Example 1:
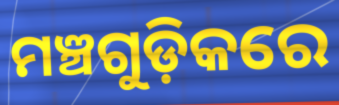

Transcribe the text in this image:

ମଞ୍ଚଗୁଡ଼ିକରେ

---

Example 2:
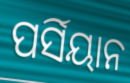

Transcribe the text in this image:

ପର୍ସିୟାନ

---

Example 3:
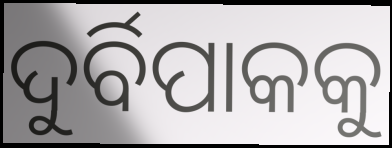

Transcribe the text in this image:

ଦୁର୍ବିପାକକୁ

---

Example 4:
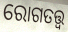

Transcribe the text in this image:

ରୋଗତତ୍ତ୍ୱ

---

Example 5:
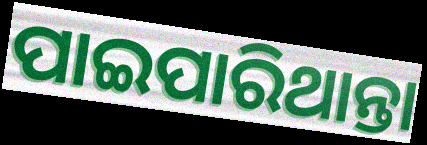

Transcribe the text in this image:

ପାଇପାରିଥାନ୍ତା